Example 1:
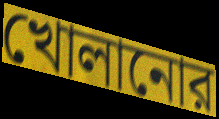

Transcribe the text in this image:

খোলানোর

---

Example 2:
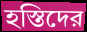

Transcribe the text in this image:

হস্তিদের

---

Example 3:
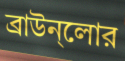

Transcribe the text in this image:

ব্রাউন্লোর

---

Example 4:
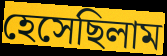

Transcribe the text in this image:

হেসেছিলাম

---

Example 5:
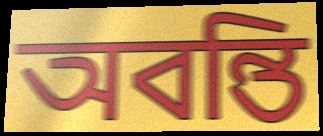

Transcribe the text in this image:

অবন্তি